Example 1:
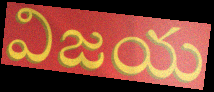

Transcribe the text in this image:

విజయ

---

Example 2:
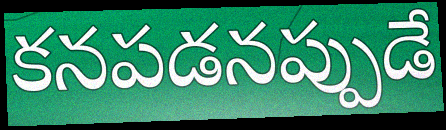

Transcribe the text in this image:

కనపడనప్పుడే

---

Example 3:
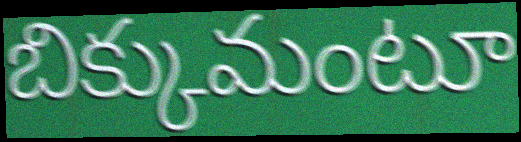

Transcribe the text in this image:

బిక్కుమంటూ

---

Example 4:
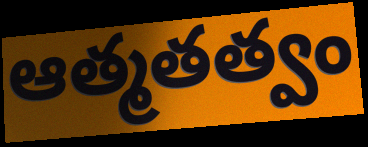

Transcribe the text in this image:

ఆత్మతత్వం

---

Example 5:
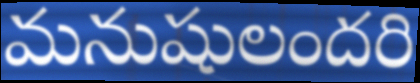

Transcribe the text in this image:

మనుషులందరి